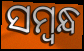
ସମ୍ୱନ୍ଧ